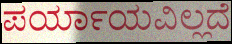
ಪರ್ಯಾಯವಿಲ್ಲದೆ